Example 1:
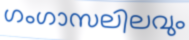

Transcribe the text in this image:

ഗംഗാസലിലവും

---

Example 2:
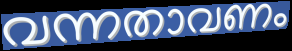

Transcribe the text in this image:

വന്നതാവണം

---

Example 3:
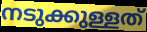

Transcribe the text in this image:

നടുക്കുള്ളത്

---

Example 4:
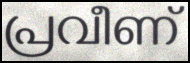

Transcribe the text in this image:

പ്രവീണ്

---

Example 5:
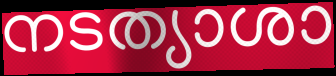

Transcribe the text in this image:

നടത്യാശാ